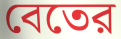
বেতের